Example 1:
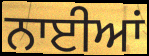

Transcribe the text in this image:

ਨਾਈਆਂ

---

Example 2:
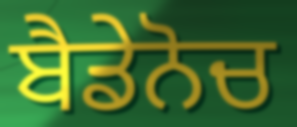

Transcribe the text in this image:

ਬੈਡੇਨੋਚ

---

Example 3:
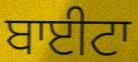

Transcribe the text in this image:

ਬਾਈਟਾ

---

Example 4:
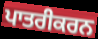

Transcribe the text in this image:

ਪਾਤਰੀਕਰਨ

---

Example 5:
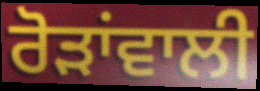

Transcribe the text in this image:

ਰੋੜਾਂਵਾਲੀ